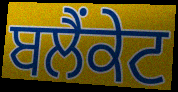
ਬਲੈਂਕੇਟ